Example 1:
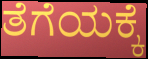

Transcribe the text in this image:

ತೆಗೆಯಕ್ಕೆ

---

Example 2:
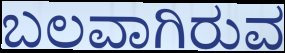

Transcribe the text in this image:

ಬಲವಾಗಿರುವ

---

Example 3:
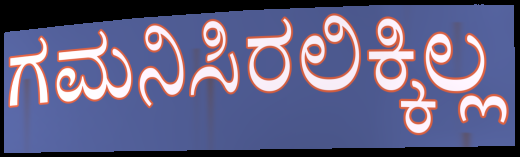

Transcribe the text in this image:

ಗಮನಿಸಿರಲಿಕ್ಕಿಲ್ಲ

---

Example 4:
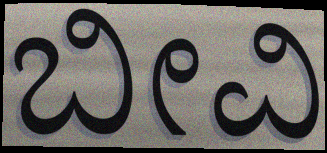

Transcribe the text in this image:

ಬೀವಿ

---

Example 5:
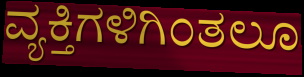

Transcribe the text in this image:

ವ್ಯಕ್ತಿಗಳಿಗಿಂತಲೂ